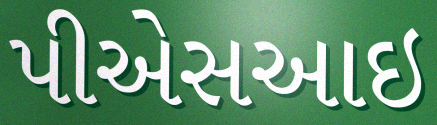
પીએસઆઇ